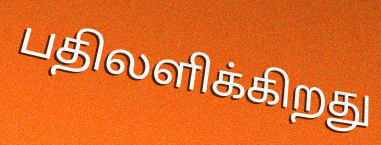
பதிலளிக்கிறது